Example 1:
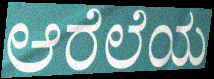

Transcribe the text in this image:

ಆರೆಲೆಯ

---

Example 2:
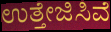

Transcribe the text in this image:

ಉತ್ತೇಜಿಸಿವೆ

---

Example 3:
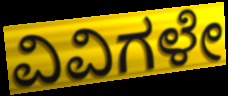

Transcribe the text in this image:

ವಿವಿಗಳೇ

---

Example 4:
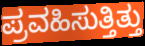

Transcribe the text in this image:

ಪ್ರವಹಿಸುತ್ತಿತ್ತು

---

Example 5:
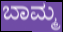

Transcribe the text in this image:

ಬಾಮ್ಮ